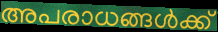
അപരാധങ്ങൾക്ക്